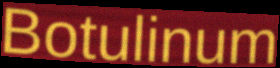
Botulinum